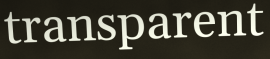
transparent